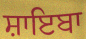
ਸ਼ਾਇਬਾ